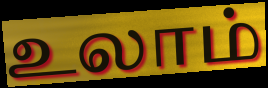
உலாம்